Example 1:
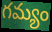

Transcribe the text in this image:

గమ్యం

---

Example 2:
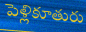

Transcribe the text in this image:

పెళ్లికూతురు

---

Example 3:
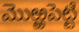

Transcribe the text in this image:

మొఱ్ఱపెట్టి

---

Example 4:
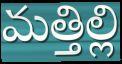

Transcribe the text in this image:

మత్తిల్లి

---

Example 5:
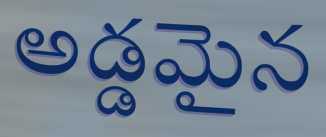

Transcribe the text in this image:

అడ్డమైన